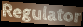
Regulator